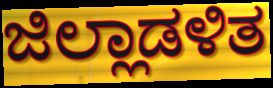
ಜಿಲ್ಲಾಡಳಿತ